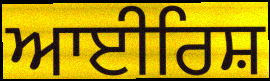
ਆਈਰਿਸ਼